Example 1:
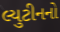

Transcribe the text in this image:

લ્યુટીનનો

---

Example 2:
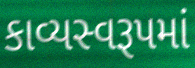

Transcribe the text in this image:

કાવ્યસ્વરૂપમાં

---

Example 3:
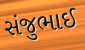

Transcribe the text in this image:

સંજુભાઈ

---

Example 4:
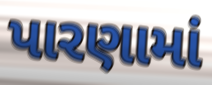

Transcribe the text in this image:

પારણામાં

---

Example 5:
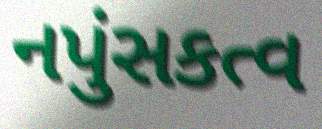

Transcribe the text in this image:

નપુંસકત્વ